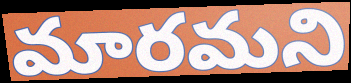
మారమని